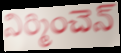
నిర్మించెన్